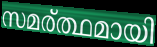
സമര്ത്ഥമായി